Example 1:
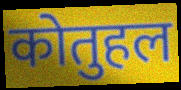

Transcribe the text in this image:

कोतुहल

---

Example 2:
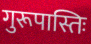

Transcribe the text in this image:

गुरूपास्तिः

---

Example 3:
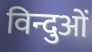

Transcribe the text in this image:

विन्दुओं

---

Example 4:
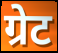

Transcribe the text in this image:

ग्रेट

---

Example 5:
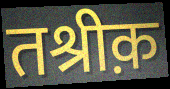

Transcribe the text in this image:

तश्रीक़